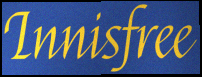
Innisfree